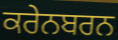
ਕਰੇਨਬਰਨ